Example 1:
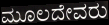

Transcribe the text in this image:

ಮೂಲದೇವರು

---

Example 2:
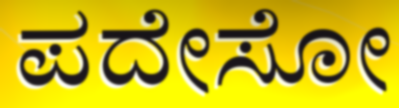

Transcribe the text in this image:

ಪದೇಸೋ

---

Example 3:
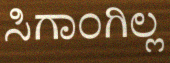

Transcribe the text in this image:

ಸಿಗಾಂಗಿಲ್ಲ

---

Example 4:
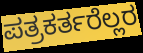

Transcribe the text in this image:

ಪತ್ರಕರ್ತರೆಲ್ಲರ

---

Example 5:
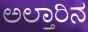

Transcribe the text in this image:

ಅಲ್ತಾರಿನ